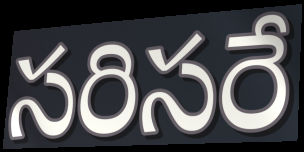
సరిసరే